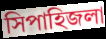
সিপাহিজলা